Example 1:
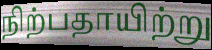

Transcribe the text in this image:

நிற்பதாயிற்று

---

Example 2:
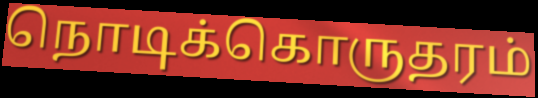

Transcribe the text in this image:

நொடிக்கொருதரம்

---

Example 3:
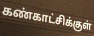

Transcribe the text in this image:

கண்காட்சிக்குள்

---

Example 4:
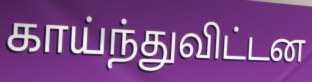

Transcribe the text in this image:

காய்ந்துவிட்டன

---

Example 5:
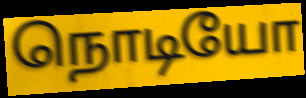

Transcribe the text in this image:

நொடியோ